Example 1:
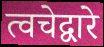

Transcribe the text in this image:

त्वचेद्वारे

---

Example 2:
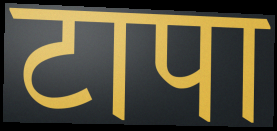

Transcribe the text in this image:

टापा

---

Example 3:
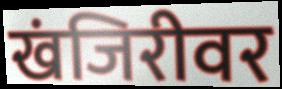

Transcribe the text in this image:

खंजिरीवर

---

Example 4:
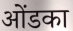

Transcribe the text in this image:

ओंडका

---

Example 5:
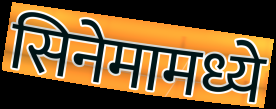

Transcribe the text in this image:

सिनेमामध्ये